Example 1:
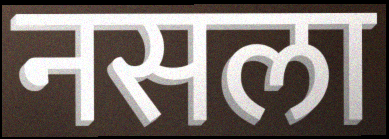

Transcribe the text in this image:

नसला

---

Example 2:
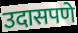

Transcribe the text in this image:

उदासपणे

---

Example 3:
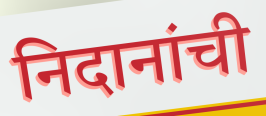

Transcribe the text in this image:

निदानांची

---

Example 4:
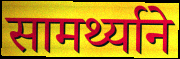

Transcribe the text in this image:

सामर्थ्याने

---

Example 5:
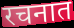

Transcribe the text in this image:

रचनात